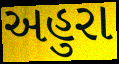
અહુરા